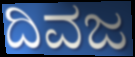
ದಿವಜ